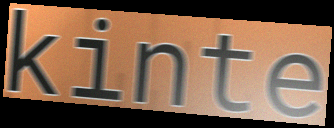
kinte